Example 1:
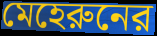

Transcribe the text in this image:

মেহেরুনের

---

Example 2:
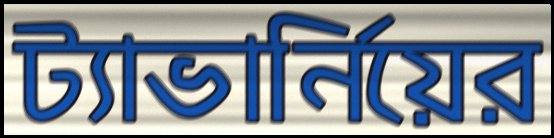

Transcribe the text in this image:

ট্যাভার্নিয়ের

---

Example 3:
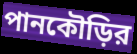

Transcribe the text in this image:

পানকৌড়ির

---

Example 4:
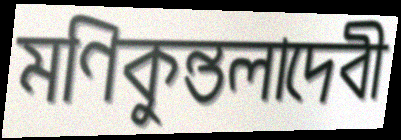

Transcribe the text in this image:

মণিকুন্তলাদেবী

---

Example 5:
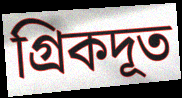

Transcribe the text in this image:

গ্রিকদূত